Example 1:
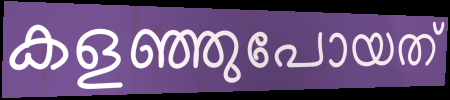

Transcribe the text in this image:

കളഞ്ഞുപോയത്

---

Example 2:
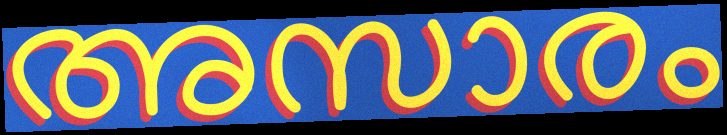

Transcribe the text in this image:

അസാരം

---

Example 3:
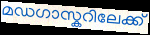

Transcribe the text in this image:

മഡഗാസ്കറിലേക്ക്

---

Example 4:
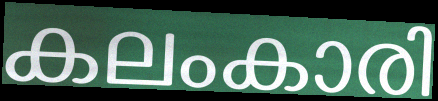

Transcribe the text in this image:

കലംകാരി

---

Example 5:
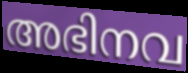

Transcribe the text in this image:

അഭിനവ